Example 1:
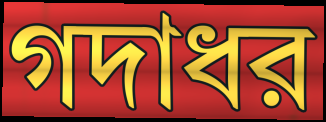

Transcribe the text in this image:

গদাধর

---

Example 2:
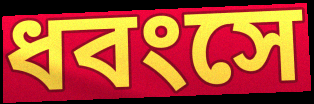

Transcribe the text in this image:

ধবংসে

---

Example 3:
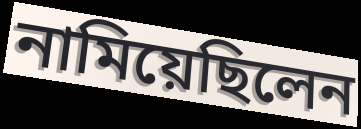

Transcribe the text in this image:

নামিয়েছিলেন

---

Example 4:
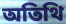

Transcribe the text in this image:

অতিথি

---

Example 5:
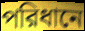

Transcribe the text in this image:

পরিধানে